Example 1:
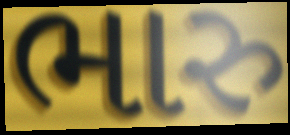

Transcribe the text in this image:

ભારુ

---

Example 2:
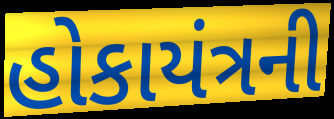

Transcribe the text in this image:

હોકાયંત્રની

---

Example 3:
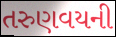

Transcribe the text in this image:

તરુણવયની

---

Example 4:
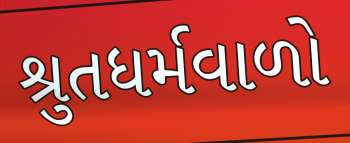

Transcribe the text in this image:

શ્રુતધર્મવાળો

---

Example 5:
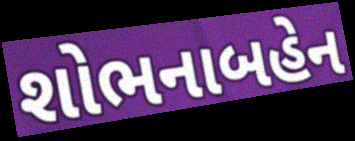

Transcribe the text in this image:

શોભનાબહેન